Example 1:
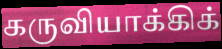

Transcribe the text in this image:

கருவியாக்கிக்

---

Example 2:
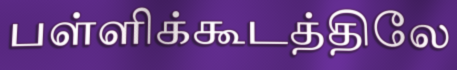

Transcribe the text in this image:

பள்ளிக்கூடத்திலே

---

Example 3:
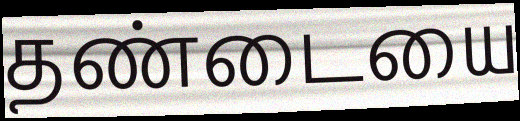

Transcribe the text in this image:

தண்டையை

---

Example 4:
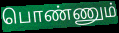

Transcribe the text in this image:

பொண்ணும்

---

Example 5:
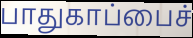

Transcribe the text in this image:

பாதுகாப்பைச்